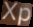
Xp